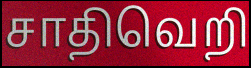
சாதிவெறி